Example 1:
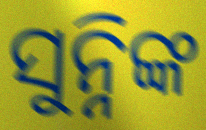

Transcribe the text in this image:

ସୁନ୍ନିଙ୍କ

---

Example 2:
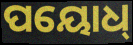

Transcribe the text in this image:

ପୟୋଧ୍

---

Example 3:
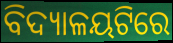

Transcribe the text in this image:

ବିଦ୍ୟାଳୟଟିରେ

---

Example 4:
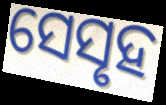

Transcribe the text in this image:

ସେସୃହ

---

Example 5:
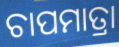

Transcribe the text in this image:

ଚାପମାତ୍ରା